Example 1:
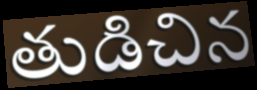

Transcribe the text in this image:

తుడిచిన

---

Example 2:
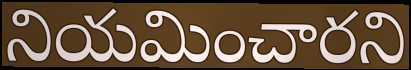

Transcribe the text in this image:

నియమించారని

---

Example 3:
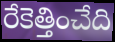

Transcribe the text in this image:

రేకెత్తించేది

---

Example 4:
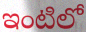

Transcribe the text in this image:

ఇంటిలో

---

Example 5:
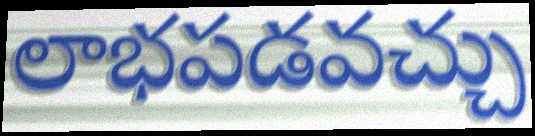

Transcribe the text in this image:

లాభపడవచ్చు